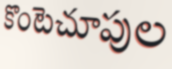
కొంటెచూపుల